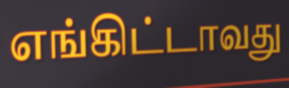
எங்கிட்டாவது